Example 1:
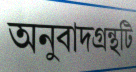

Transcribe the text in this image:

অনুবাদগ্রন্থটি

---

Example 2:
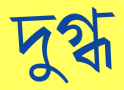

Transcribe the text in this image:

দুগ্ধ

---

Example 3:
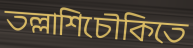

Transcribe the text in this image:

তল্লাশিচৌকিতে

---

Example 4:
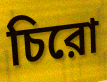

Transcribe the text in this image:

চিরো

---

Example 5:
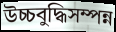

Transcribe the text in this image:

উচ্চবুদ্ধিসম্পন্ন